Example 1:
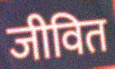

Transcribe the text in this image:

जीवित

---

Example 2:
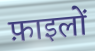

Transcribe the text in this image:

फ़ाइलों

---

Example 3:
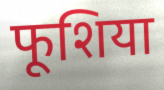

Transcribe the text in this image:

फूशिया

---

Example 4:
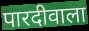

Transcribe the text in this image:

पारदीवाला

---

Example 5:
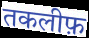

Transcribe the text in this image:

तकलीफ़